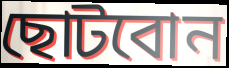
ছোটবোন